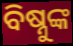
ବିଷ୍ନୁଙ୍କ